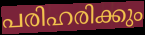
പരിഹരിക്കും